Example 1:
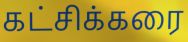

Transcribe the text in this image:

கட்சிக்கரை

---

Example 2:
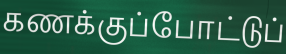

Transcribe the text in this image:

கணக்குப்போட்டுப்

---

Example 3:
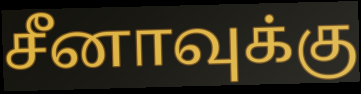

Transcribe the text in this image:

சீனாவுக்கு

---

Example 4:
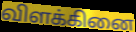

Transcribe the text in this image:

விளக்கினை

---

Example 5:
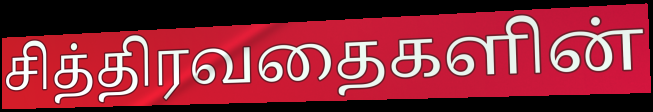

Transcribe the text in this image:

சித்திரவதைகளின்